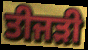
ਤੀਜੜੀ